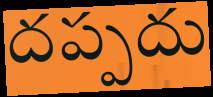
దప్పదు